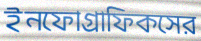
ইনফোগ্রাফিকসের